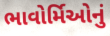
ભાવોર્મિઓનું